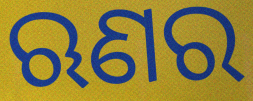
ଋଣର